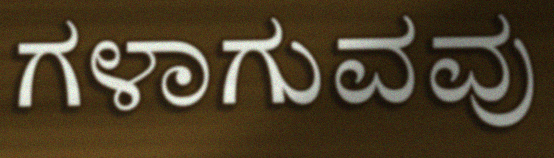
ಗಳಾಗುವವು